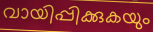
വായിപ്പിക്കുകയും